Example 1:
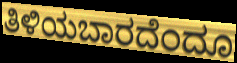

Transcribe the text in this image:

ತಿಳಿಯಬಾರದೆಂದೂ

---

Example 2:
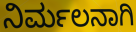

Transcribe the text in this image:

ನಿರ್ಮಲನಾಗಿ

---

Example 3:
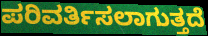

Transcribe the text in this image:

ಪರಿವರ್ತಿಸಲಾಗುತ್ತದೆ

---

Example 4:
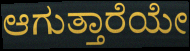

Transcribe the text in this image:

ಆಗುತ್ತಾರೆಯೇ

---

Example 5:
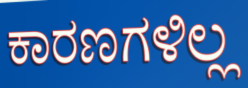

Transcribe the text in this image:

ಕಾರಣಗಳಿಲ್ಲ